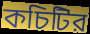
কচিটির